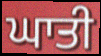
ਘਾਤੀ